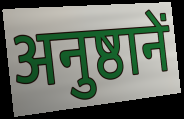
अनुष्ठानें